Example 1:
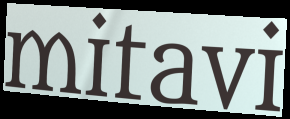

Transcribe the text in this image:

mitavi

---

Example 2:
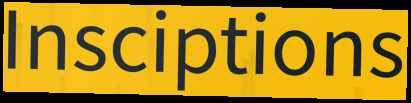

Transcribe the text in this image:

Insciptions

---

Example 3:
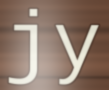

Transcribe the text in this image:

jy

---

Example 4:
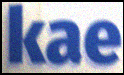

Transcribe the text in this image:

kae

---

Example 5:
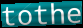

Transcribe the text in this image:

tothe